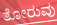
ತೋರುವು